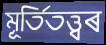
মূৰ্তিতত্ত্বৰ